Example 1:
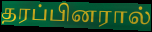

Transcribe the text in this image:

தரப்பினரால்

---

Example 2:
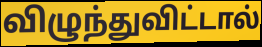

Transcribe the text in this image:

விழுந்துவிட்டால்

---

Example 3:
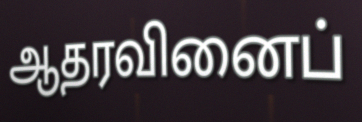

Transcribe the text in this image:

ஆதரவினைப்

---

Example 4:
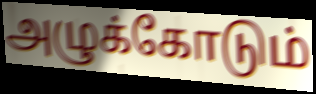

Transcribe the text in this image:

அழுக்கோடும்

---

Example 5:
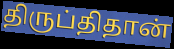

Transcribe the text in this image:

திருப்திதான்